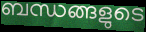
ബന്ധങ്ങളുടെ